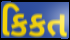
કિકત